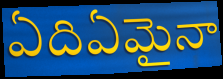
ఏదిఏమైనా